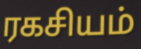
ரகசியம்